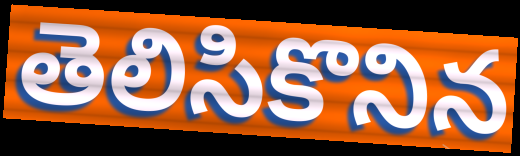
తెలిసికొనిన